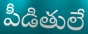
పీడితులే